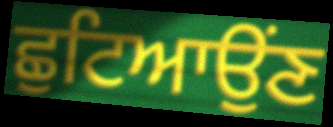
ਛੁਟਿਆਉਂਣ